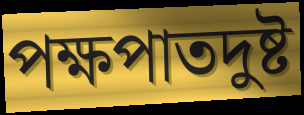
পক্ষপাতদুষ্ট